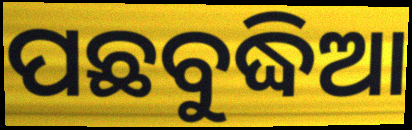
ପଛବୁଦ୍ଧିଆ